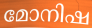
മോനിഷ